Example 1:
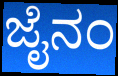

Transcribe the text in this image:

ಜೈನಂ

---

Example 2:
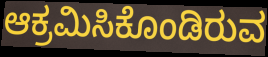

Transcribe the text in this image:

ಆಕ್ರಮಿಸಿಕೊಂಡಿರುವ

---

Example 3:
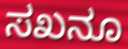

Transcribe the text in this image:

ಸಖನೂ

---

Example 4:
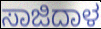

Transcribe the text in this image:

ಸಾಜಿದಾಳ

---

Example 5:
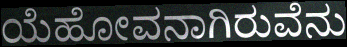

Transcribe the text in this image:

ಯೆಹೋವನಾಗಿರುವೆನು